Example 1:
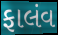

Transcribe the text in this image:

ફાલંવ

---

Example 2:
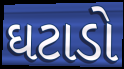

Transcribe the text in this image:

ઘટાડો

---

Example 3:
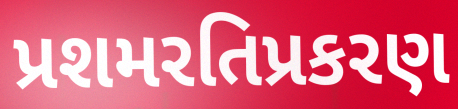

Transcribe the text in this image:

પ્રશમરતિપ્રકરણ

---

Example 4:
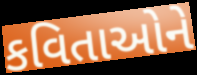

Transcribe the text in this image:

કવિતાઓને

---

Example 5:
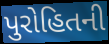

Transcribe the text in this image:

પુરોહિતની